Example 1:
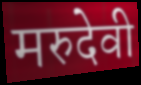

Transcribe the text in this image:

मरुदेवी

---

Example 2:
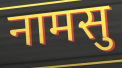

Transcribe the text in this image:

नामसु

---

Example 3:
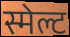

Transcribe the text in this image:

स्मेल्ट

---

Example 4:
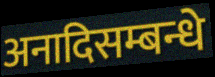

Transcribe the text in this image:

अनादिसम्बन्धे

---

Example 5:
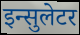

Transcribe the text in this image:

इन्सुलेटर